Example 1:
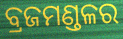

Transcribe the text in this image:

ବ୍ରଜମଣ୍ଡଳର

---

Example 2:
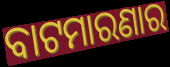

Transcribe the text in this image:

ବାଟମାରଣାର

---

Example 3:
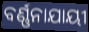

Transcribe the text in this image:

ବର୍ଣ୍ଣନାଯାୟୀ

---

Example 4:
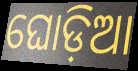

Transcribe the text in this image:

ଘୋଡ଼ିଆ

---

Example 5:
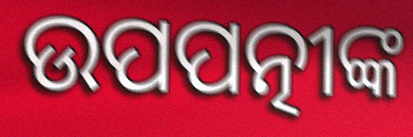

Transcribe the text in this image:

ଉପପତ୍ନୀଙ୍କ